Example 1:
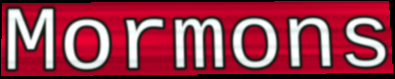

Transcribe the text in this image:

Mormons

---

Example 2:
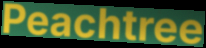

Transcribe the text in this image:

Peachtree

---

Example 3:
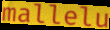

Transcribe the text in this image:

mallelu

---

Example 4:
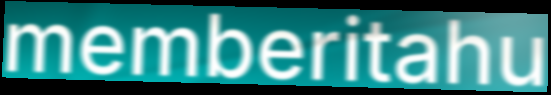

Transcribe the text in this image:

memberitahu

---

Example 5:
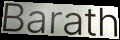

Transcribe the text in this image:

Barath